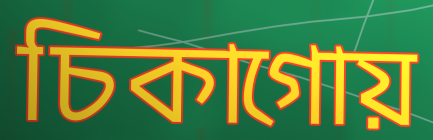
চিকাগোয়